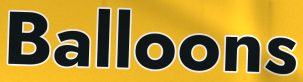
Balloons